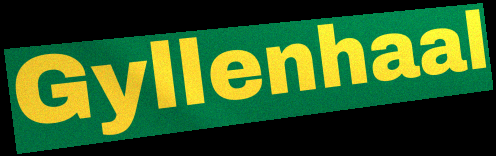
Gyllenhaal